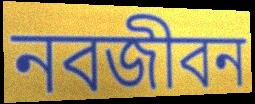
নবজীবন